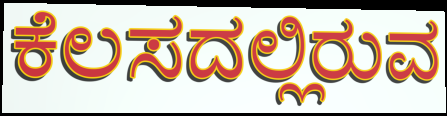
ಕೆಲಸದಲ್ಲಿರುವ